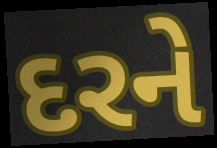
દરને